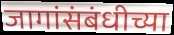
जागांसंबंधीच्या